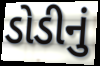
ડોડીનું